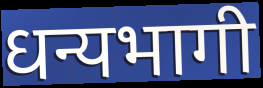
धन्यभागी